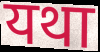
यथा